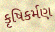
કૃષિકર્મણ